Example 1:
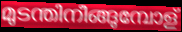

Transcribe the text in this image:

മുടന്തിനീങ്ങുമ്പോള്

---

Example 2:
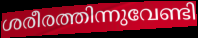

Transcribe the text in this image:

ശരീരത്തിന്നുവേണ്ടി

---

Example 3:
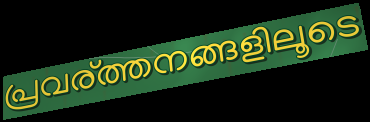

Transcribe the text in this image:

പ്രവര്ത്തനങ്ങളിലൂടെ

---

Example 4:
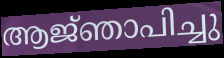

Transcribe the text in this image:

ആജ്‌ഞാപിച്ചു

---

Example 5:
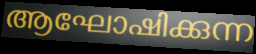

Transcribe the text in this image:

ആഘോഷിക്കുന്ന